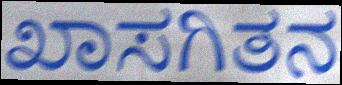
ಖಾಸಗಿತನ